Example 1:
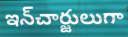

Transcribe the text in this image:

ఇన్‌చార్జులుగా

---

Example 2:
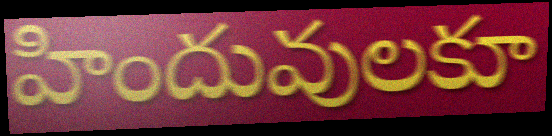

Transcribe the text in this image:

హిందువులకూ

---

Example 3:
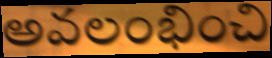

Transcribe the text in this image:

అవలంభించి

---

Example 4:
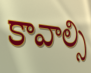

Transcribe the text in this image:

కావాల్సి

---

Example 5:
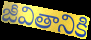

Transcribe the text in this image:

జీవితానికి